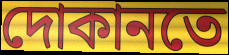
দোকানতে